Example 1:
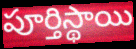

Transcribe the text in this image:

పూర్తిస్థాయి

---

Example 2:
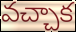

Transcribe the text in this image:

వచ్చాక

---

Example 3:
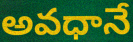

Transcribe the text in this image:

అవధానే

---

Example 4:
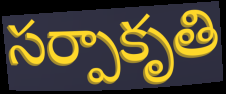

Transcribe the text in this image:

సర్పాకృతి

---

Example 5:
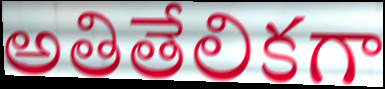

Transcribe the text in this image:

అతితేలికగా